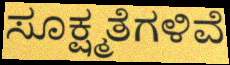
ಸೂಕ್ಷ್ಮತೆಗಳಿವೆ